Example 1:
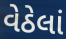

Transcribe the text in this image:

વેઠેલાં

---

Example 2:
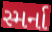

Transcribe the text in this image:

સ્મર્ના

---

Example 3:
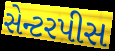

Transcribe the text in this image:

સેન્ટરપીસ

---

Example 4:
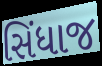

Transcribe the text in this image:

સિંધાજ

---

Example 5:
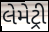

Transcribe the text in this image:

લેમેટ્રી